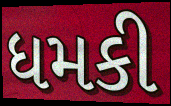
ધમકી